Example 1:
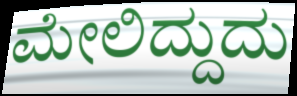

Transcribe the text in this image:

ಮೇಲಿದ್ದುದು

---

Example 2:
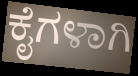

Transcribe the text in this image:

ಕೈಗಳಾಗಿ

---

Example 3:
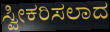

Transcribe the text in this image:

ಸ್ವೀಕರಿಸಲಾದ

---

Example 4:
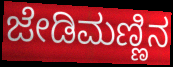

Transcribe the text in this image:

ಜೇಡಿಮಣ್ಣಿನ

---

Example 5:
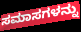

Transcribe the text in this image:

ಸಮಾಸಗಳನ್ನು